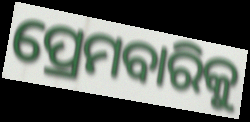
ପ୍ରେମବାରିକୁ